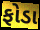
ફોડા